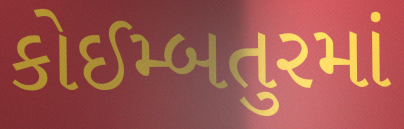
કોઈમ્બતુરમાં